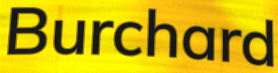
Burchard